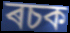
ৰচক